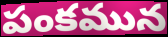
పంకమున